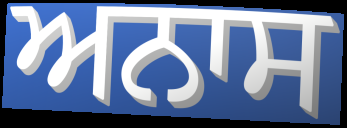
ਅਨਾਸ